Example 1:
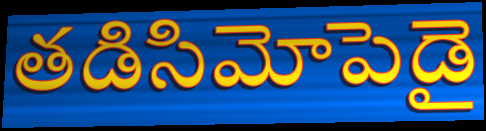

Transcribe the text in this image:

తడిసిమోపెడై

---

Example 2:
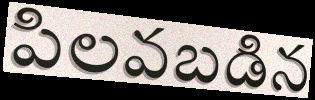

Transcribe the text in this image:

పిలవబడిన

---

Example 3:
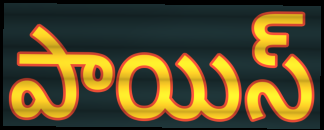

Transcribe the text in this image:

పాయిస్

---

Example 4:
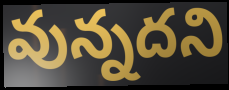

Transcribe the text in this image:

వున్నదని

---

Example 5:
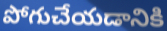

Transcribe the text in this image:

పోగుచేయడానికి